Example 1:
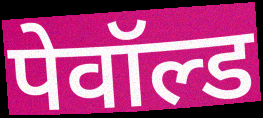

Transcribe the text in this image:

पेवॉल्ड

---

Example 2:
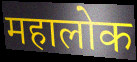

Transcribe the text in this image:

महालोक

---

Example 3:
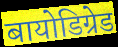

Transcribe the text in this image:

बायोडिग्रेड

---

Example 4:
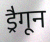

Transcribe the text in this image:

ड्रैगून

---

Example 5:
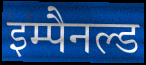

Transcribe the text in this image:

इम्पैनल्ड